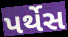
પર્થેસ